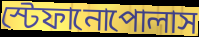
স্টেফানোপোলাস